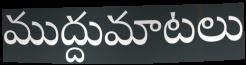
ముద్దుమాటలు